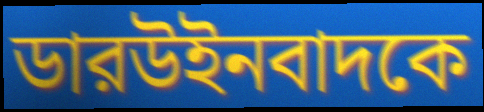
ডারউইনবাদকে